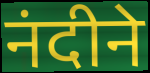
नंदीने